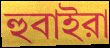
হুবাইরা